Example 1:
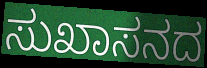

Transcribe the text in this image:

ಸುಖಾಸನದ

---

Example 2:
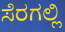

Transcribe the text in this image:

ಸೆರಗಲ್ಲಿ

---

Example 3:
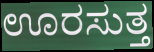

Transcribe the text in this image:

ಊರಸುತ್ತ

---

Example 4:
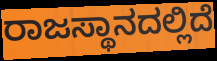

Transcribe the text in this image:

ರಾಜಸ್ಥಾನದಲ್ಲಿದೆ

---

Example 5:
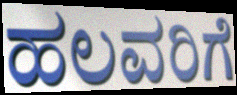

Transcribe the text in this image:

ಹಲವರಿಗೆ